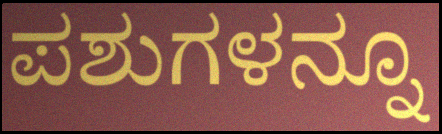
ಪಶುಗಳನ್ನೂ